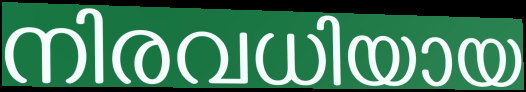
നിരവധിയായ